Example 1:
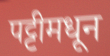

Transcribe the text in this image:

पट्टीमधून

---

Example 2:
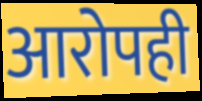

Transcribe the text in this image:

आरोपही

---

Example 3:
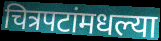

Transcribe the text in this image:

चित्रपटांमधल्या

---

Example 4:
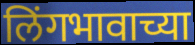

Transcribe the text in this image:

लिंगभावाच्या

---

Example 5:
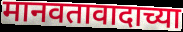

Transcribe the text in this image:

मानवतावादाच्या